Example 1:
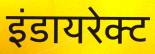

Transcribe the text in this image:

इंडायरेक्ट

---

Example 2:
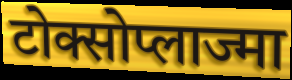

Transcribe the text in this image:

टोक्सोप्लाज्मा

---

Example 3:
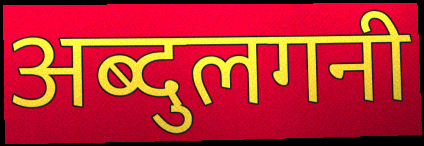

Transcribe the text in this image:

अब्दुलगनी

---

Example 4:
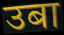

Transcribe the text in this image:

उबा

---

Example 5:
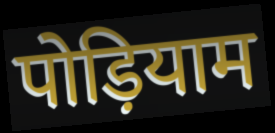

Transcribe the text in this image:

पोड़ियाम